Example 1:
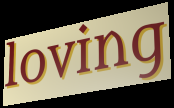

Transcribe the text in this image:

loving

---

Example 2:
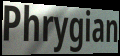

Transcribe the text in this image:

Phrygian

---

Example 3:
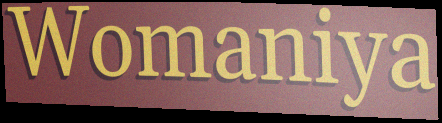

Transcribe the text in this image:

Womaniya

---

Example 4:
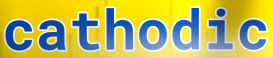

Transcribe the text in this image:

cathodic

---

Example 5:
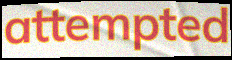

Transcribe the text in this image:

attempted